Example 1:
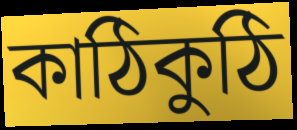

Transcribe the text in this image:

কাঠিকুঠি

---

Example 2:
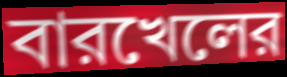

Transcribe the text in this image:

বারখেলের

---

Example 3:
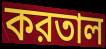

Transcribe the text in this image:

করতাল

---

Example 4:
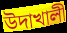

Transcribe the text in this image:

উদাখালী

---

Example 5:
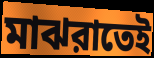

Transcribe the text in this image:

মাঝরাতেই